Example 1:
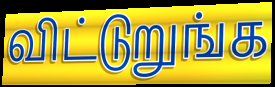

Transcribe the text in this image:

விட்டுறுங்க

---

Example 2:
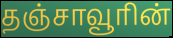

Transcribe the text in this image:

தஞ்சாவூரின்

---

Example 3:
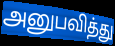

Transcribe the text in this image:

அனுபவித்து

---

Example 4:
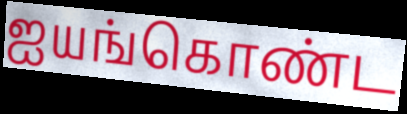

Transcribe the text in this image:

ஐயங்கொண்ட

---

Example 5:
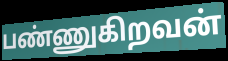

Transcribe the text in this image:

பண்ணுகிறவன்